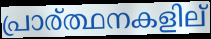
പ്രാര്ത്ഥനകളില്